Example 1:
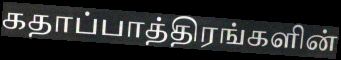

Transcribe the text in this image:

கதாப்பாத்திரங்களின்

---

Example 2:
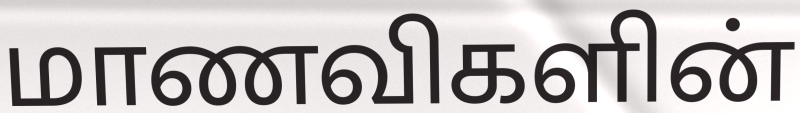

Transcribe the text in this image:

மாணவிகளின்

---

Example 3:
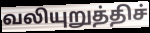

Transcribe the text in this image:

வலியுறுத்திச்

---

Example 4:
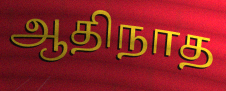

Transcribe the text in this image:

ஆதிநாத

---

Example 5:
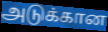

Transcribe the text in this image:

அடுக்கான